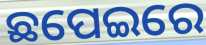
ଛପେଇରେ